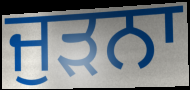
ਜੁੜਨਾ